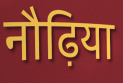
नौढ़िया